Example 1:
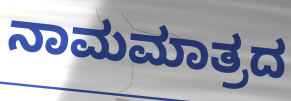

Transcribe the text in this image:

ನಾಮಮಾತ್ರದ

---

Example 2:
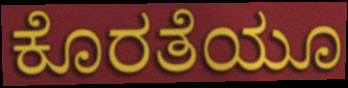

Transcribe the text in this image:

ಕೊರತೆಯೂ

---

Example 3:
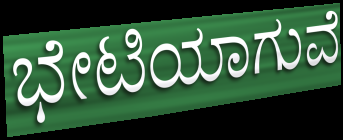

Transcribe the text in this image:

ಭೇಟಿಯಾಗುವೆ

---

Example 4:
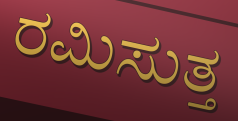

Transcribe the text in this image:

ರಮಿಸುತ್ತ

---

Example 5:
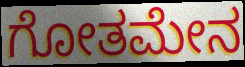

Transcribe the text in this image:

ಗೋತಮೇನ